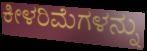
ಕೀಳರಿಮೆಗಳನ್ನು